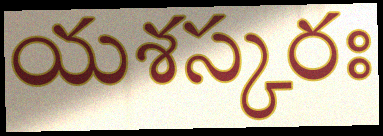
యశస్కరః